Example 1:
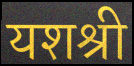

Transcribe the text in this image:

यशश्री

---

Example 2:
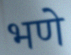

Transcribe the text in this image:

भणे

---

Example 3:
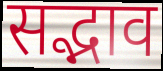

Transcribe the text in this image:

सद्भाव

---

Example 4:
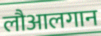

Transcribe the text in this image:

लौआलगान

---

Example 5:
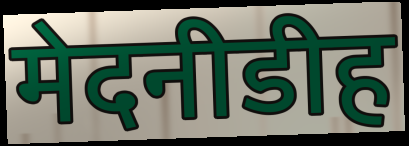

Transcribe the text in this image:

मेदनीडीह